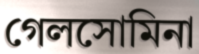
গেলসোমিনা